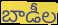
బాడీల